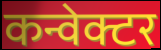
कन्वेक्टर